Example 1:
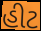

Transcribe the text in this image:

હીટ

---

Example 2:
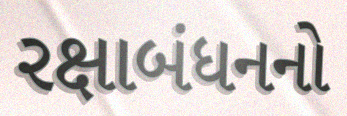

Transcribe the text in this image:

રક્ષાબંધનનો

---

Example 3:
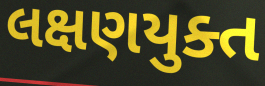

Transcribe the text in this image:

લક્ષણયુક્ત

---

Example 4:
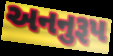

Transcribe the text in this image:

અનનુરૂપ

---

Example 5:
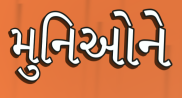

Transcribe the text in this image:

મુનિઓને